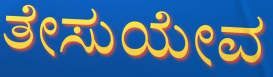
ತೇಸುಯೇವ